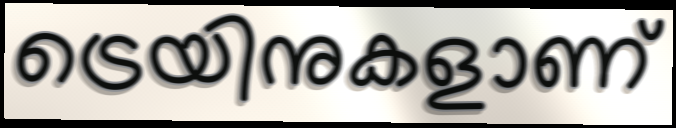
ട്രെയിനുകളാണ്